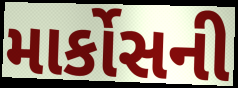
માર્કોસની